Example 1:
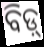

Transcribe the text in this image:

ବିଡ଼୍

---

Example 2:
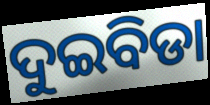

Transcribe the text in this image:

ଦୁଇବିଡା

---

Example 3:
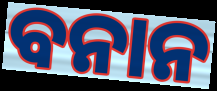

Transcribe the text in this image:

ବନାନ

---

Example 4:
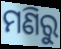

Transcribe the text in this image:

ମଣିରୁ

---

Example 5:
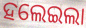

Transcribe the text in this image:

ହଲେଇଲା